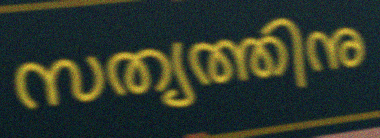
സത്യത്തിനു